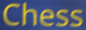
Chess